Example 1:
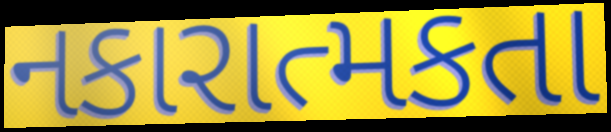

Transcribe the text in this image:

નકારાત્મકતા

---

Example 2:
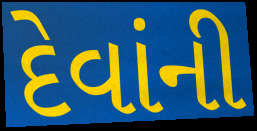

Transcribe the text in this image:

દેવાંની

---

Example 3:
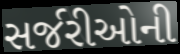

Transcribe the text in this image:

સર્જરીઓની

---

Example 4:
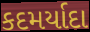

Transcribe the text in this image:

કદમર્યાદા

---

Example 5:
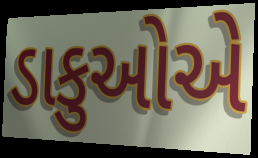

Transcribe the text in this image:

ડાકુઓએ